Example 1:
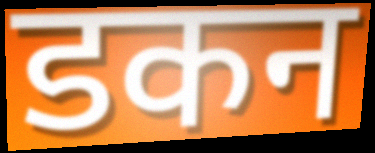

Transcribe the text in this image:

डकन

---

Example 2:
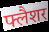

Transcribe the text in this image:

फ्लैशर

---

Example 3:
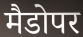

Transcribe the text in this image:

मैडोपर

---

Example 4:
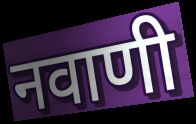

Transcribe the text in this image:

नवाणी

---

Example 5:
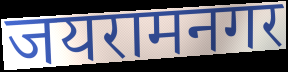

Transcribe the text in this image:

जयरामनगर